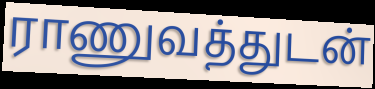
ராணுவத்துடன்